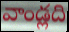
వాండ్లది